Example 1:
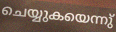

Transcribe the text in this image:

ചെയ്യുകയെന്നു്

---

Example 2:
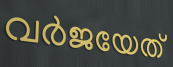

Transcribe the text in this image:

വർജയേത്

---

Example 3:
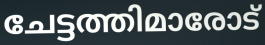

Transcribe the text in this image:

ചേട്ടത്തിമാരോട്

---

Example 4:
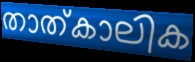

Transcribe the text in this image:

താത്കാലിക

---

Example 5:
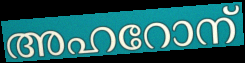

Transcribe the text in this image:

അഹറോന്